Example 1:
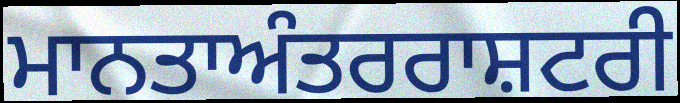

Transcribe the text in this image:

ਮਾਨਤਾਅੰਤਰਰਾਸ਼ਟਰੀ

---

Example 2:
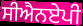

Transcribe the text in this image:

ਸੀਐਨਏਪੀ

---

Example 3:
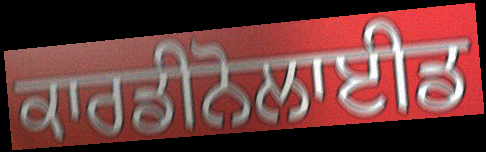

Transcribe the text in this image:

ਕਾਰਡੀਨੋਲਾਈਡ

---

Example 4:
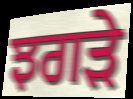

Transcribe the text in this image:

ਝਗਡ਼ੇ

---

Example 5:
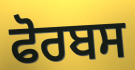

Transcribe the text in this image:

ਫੋਰਬਸ